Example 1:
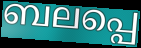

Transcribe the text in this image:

ബലപ്പെ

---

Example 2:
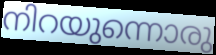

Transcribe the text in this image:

നിറയുന്നൊരു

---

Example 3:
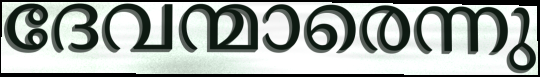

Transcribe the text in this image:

ദേവന്മാരെന്നു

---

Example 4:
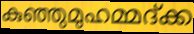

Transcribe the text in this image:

കുഞ്ഞുമുഹമ്മദ്ക്ക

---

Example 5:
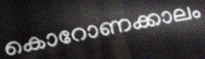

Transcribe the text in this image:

കൊറോണക്കാലം